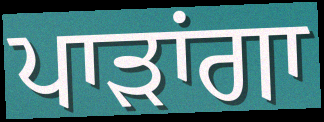
ਪਾੜਾਂਗਾ